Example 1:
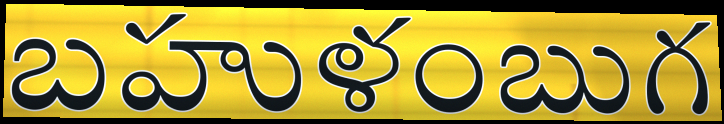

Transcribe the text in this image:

బహుళంబుగ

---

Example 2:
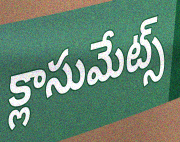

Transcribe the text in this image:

క్లాసుమేట్స్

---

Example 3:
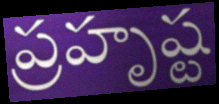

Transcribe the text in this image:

ప్రహృష్ట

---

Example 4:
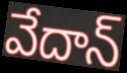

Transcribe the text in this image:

వేదాన్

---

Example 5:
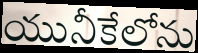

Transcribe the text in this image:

యునీకేలోను